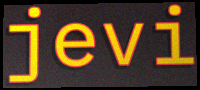
jevi